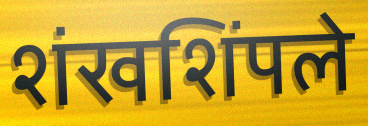
शंखशिंपले